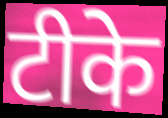
टीके